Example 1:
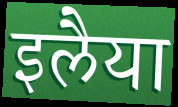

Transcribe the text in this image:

इलैया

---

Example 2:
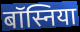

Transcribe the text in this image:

बॉस्निया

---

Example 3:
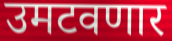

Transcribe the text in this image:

उमटवणार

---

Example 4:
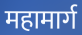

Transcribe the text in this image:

महामार्ग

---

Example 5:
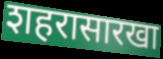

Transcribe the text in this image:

शहरासारखा